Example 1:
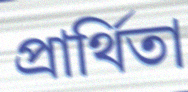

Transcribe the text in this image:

প্রার্থিতা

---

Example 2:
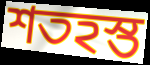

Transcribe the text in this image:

শতহস্ত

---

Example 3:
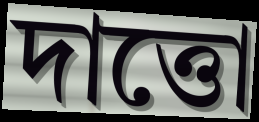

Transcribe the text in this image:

দাত্তো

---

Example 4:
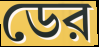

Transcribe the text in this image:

ডের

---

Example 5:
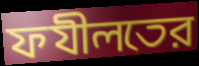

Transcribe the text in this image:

ফযীলতের